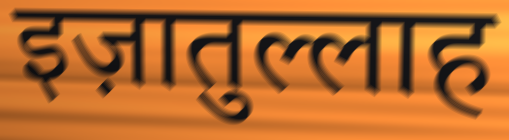
इज़ातुल्लाह